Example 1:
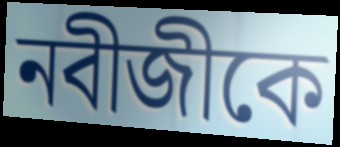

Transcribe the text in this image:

নবীজীকে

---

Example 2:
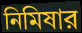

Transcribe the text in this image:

নিমিষার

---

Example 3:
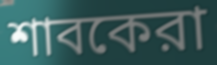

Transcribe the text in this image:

শাবকেরা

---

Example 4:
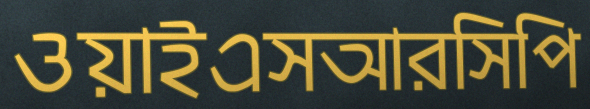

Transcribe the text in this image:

ওয়াইএসআরসিপি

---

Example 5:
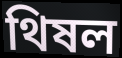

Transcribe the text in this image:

থিষল